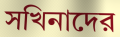
সখিনাদের